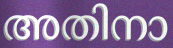
അതിനാ